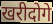
खरीदोगे